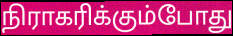
நிராகரிக்கும்போது